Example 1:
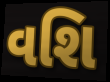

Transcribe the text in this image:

વશિ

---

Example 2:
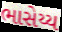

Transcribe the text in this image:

ભાસેય્ય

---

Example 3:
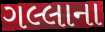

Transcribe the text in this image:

ગલ્લાના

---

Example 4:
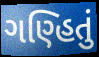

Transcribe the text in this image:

ગણ્હિતું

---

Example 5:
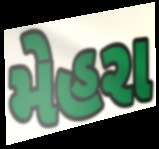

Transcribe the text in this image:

મેહરા